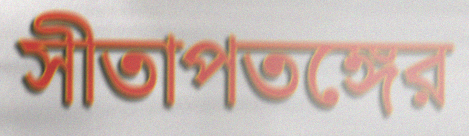
সীতাপতঙ্গের